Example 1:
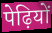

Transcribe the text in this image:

पेढ़ियों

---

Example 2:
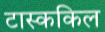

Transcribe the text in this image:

टास्ककिल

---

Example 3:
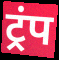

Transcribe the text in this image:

ट्रंप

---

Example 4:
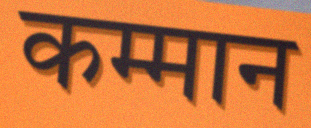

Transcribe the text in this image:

कम्मान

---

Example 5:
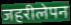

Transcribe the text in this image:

जहरीलेपन